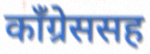
काँग्रेससह